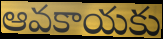
ఆవకాయకు